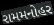
રામમનોહર